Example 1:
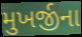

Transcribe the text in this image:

મુખર્જીના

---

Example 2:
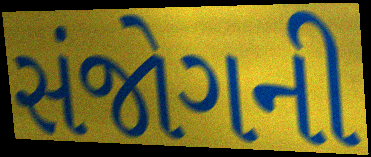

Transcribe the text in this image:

સંજોગની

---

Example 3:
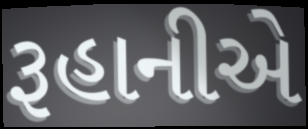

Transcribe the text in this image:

રૂહાનીએ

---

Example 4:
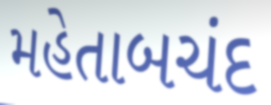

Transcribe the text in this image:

મહેતાબચંદ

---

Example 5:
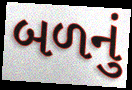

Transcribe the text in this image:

બળનું